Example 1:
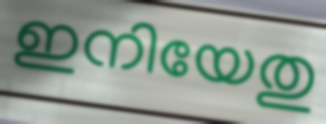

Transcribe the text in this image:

ഇനിയേതു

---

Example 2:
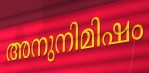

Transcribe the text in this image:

അനുനിമിഷം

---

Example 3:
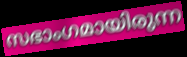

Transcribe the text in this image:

സഭാംഗമായിരുന്ന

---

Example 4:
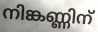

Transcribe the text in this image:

നിങ്കണ്ണിന്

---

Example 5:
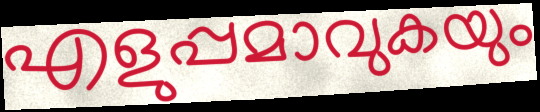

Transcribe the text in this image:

എളുപ്പമാവുകയും